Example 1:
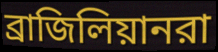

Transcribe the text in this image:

ব্রাজিলিয়ানরা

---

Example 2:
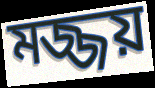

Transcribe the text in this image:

মজ্জয়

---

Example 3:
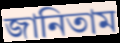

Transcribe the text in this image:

জানিতাম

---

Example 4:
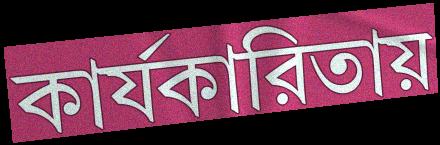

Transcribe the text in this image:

কার্যকারিতায়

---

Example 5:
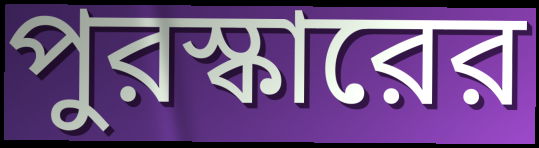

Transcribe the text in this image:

পুরস্কারের